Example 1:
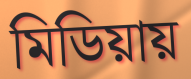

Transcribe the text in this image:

মিডিয়ায়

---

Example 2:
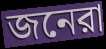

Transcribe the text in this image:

জনেরা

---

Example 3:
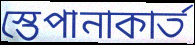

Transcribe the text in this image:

স্তেপানাকার্ত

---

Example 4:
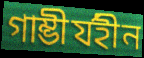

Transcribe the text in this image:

গাম্ভীর্যহীন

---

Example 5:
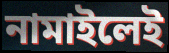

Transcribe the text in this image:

নামাইলেই